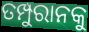
ତମ୍ପୁରାନକୁ